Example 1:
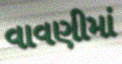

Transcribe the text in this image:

વાવણીમાં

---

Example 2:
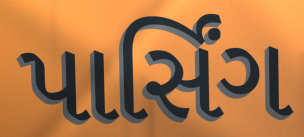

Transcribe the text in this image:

પાર્સિંગ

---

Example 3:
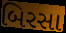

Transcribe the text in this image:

બિરસા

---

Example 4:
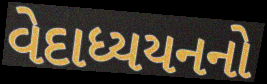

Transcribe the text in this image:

વેદાધ્યયનનો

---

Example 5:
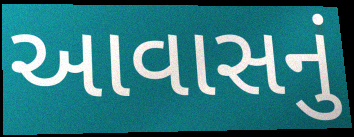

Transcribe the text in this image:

આવાસનું